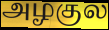
அழகுல